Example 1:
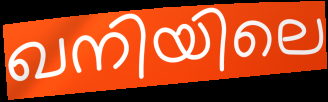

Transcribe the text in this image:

ഖനിയിലെ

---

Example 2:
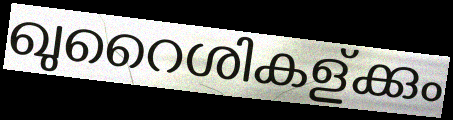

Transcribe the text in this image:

ഖുറൈശികള്ക്കും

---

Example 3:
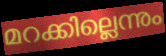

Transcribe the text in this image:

മറക്കില്ലെന്നും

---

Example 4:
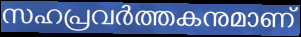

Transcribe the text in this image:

സഹപ്രവർത്തകനുമാണ്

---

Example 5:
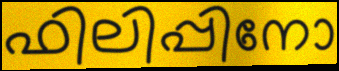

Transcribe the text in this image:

ഫിലിപ്പിനോ